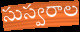
సుస్వరాల